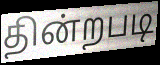
தின்றபடி